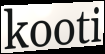
kooti